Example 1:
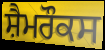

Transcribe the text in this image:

ਸ਼ੈਮਰੌਕਸ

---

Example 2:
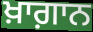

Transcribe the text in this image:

ਖ਼ਾਗ਼ਾਨ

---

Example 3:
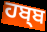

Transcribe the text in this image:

ਹਬ੍ਬ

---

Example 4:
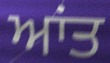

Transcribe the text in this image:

ਆਂਤ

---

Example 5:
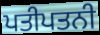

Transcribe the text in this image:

ਪਤੀਪਤਨੀ